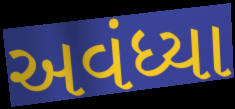
અવંધ્યા